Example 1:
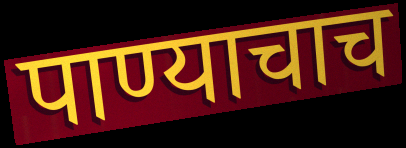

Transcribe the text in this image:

पाण्याचाच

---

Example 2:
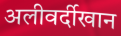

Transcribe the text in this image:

अलीवर्दीखान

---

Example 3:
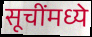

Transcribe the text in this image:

सूचींमध्ये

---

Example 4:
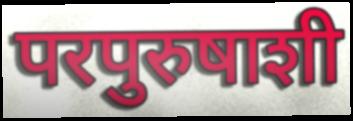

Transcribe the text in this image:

परपुरुषाशी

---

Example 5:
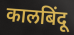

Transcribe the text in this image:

कालबिंदू